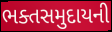
ભક્તસમુદાયની